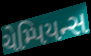
ચેમ્પિયન્સ